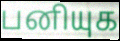
பனியுக